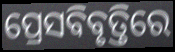
ପ୍ରେସବିବୃତ୍ତିରେ